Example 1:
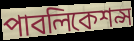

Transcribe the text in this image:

পাবলিকেশন্স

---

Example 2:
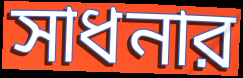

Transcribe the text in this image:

সাধনার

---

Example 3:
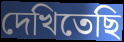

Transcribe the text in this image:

দেখিতেছি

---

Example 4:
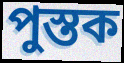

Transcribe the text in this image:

পুস্তক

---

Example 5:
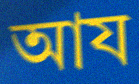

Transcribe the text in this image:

আয